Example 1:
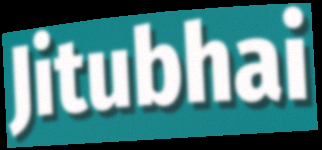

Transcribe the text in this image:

Jitubhai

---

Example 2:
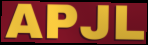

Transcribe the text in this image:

APJL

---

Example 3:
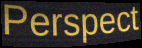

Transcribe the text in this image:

Perspect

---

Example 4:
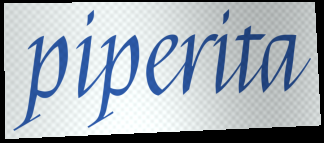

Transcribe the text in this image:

piperita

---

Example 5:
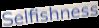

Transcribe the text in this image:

Selfishness